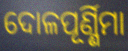
ଦୋଳପୂର୍ଣ୍ଣିମା